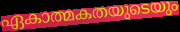
ഏകാത്മകതയുടെയും